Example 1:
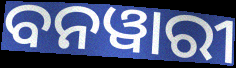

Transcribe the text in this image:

ବନୱାରୀ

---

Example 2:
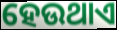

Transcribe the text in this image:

ହେଉଥାଏ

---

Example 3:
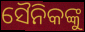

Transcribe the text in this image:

ସୈନିକଙ୍କୁ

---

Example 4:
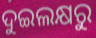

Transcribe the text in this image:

ଦୁଇଲକ୍ଷରୁ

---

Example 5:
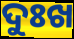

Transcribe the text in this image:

ଦୁଃଖ